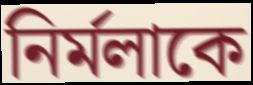
নির্মলাকে